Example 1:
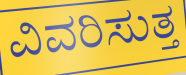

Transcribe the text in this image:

ವಿವರಿಸುತ್ತ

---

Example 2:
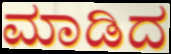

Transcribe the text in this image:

ಮಾಡಿದ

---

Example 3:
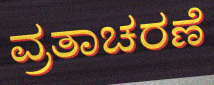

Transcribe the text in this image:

ವ್ರತಾಚರಣೆ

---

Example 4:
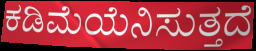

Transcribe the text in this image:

ಕಡಿಮೆಯೆನಿಸುತ್ತದೆ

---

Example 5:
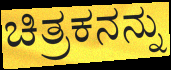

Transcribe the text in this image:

ಚಿತ್ರಕನನ್ನು